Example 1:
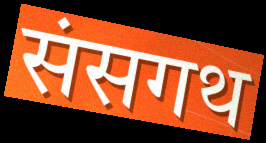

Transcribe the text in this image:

संसगथ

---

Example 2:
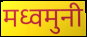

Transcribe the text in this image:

मध्वमुनी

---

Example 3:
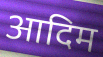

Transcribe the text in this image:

आदिम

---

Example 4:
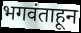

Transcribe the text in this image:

भगवंताहून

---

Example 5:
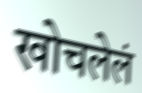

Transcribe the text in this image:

खोचलेलं